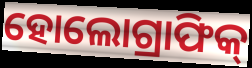
ହୋଲୋଗ୍ରାଫିକ୍